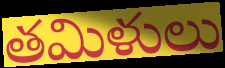
తమిళులు